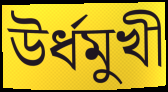
উর্ধমুখী